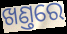
ଖଣ୍ତରେ